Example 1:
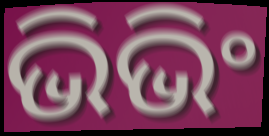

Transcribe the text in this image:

ଭିଭିଂ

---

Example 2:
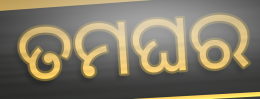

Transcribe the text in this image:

ତମଘର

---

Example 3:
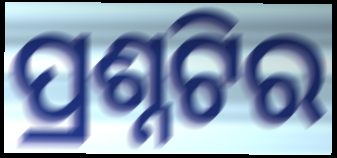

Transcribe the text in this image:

ପ୍ରଶ୍ନଟିର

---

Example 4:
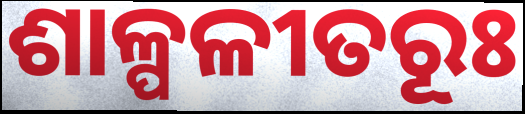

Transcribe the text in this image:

ଶାଳ୍ପଳୀତରୂଃ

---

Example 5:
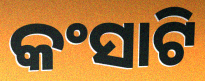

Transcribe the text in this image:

କଂସାଟି